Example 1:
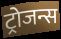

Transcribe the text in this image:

ट्रोजन्स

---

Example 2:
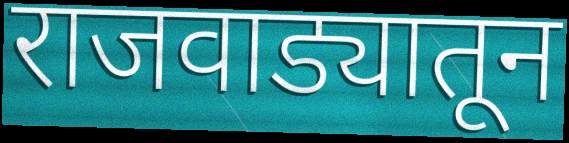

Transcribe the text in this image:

राजवाड्यातून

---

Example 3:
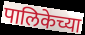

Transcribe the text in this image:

पालिकेच्या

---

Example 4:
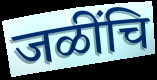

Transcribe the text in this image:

जळींचि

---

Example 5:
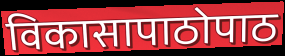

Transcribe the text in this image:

विकासापाठोपाठ